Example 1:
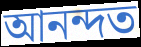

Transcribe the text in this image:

আনন্দত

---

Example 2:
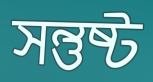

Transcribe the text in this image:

সন্তুষ্ট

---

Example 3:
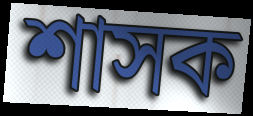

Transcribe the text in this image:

শাসক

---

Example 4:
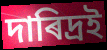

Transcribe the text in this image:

দাৰিদ্ৰই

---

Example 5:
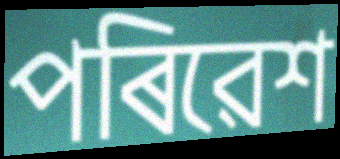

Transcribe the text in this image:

পৰিৱেশ